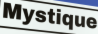
Mystique